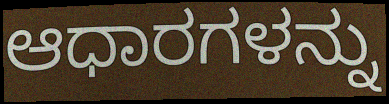
ಆಧಾರಗಳನ್ನು